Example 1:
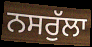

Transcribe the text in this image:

ਨਸਰੁੱਲਾ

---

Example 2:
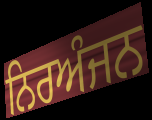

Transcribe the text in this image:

ਨਿਰਅੰਜਨ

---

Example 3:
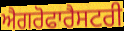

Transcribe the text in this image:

ਐਗਰੋਫਾਰੈਸਟਰੀ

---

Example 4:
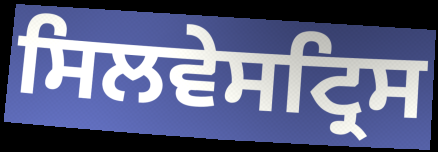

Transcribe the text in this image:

ਸਿਲਵੇਸਟ੍ਰਿਸ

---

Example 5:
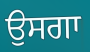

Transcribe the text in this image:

ਉਸਗਾ